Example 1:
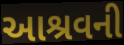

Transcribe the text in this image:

આશ્રવની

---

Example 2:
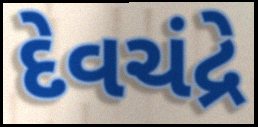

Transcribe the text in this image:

દેવચંદ્રે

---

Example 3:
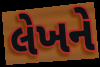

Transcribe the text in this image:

લેખને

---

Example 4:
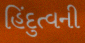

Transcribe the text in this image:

હિંદુત્વની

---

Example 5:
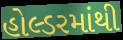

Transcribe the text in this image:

હોલ્ડરમાંથી